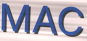
MAC